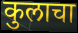
कुलाचा